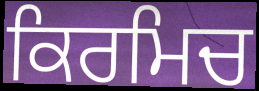
ਕਿਰਮਿਚ